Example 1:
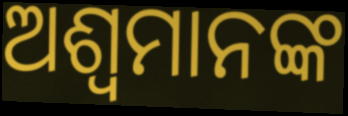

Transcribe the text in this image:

ଅଶ୍ୱମାନଙ୍କ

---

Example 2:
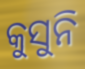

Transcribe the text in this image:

କୁସୁନି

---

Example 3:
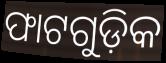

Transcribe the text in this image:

ଫାଟଗୁଡ଼ିକ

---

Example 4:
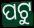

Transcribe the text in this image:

ପଟୁ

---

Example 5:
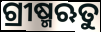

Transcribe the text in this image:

ଗ୍ରୀଷ୍ମଋତୁ